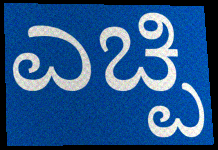
ಎಚ್ಪಿ